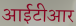
आईटीआर